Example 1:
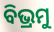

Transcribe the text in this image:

ବିଭ୍ରମୁ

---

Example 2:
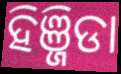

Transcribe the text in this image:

ହିଞ୍ଜିଡା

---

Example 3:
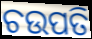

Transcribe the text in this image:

ଚଉପତି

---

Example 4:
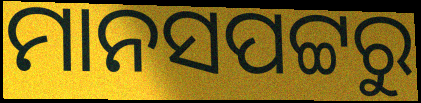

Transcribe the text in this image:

ମାନସପଟ୍ଟରୁ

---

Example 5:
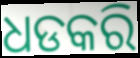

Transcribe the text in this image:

ଧଡକରି